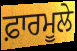
ਫ਼ਾਰਮੂਲੇ